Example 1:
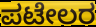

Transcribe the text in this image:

ಪಟೇಲರ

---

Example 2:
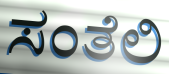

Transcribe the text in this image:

ಸಂತೆಲಿ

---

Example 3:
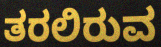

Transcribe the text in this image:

ತರಲಿರುವ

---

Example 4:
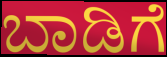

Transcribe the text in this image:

ಬಾಡಿಗೆ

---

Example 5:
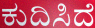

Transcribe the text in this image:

ಕುದಿಸಿದೆ